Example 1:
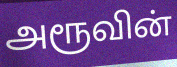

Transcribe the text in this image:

அரூவின்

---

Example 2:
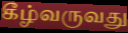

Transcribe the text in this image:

கீழ்வருவது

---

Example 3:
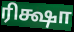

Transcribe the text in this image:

ரிக்ஷா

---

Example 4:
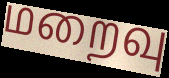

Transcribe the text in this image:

மறைவு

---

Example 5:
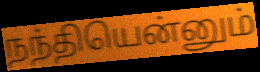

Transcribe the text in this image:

நந்தியென்னும்